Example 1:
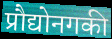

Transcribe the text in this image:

प्रौद्योनगकी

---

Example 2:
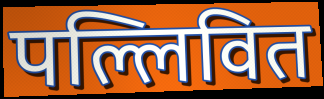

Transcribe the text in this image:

पल्लिवित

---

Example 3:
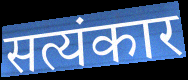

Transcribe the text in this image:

सत्यंकार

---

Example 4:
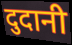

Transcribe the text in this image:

दुदानी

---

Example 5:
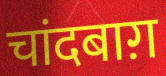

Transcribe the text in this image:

चांदबाग़